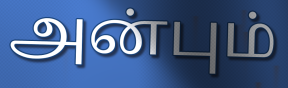
அன்பும்